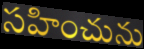
సహించును